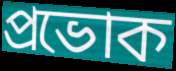
প্রভোক